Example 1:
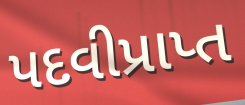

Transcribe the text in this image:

પદવીપ્રાપ્ત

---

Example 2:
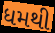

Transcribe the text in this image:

ધમથી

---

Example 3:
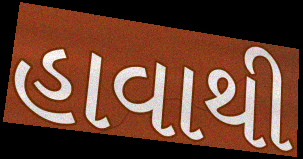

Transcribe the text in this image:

હાવાથી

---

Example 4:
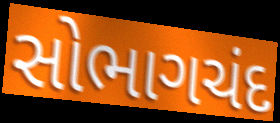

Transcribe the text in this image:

સોભાગચંદ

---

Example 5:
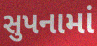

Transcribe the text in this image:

સુપનામાં